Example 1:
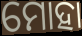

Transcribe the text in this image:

ମୋହା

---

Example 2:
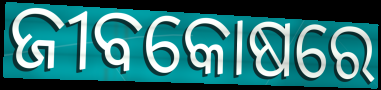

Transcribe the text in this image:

ଜୀବକୋଷରେ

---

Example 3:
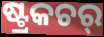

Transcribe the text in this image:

ଷ୍ଟ୍ରକଚର୍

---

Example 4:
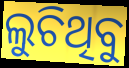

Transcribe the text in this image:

ଲୁଚିଥିବୁ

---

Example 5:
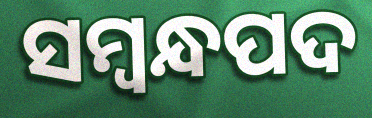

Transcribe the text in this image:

ସମ୍ବନ୍ଧପଦ